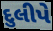
દુલીપે